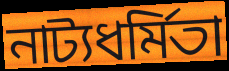
নাট্যধর্মিতা